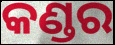
କଣ୍ଡର